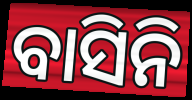
ବାସିନି